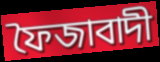
ফৈজাবাদী